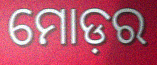
ମୋଡ଼ର